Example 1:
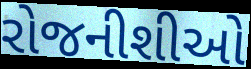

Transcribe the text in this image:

રોજનીશીઓ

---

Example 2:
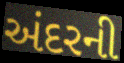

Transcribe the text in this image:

અંદરની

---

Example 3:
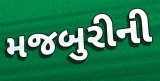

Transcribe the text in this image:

મજબુરીની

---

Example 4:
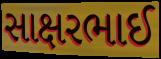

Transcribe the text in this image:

સાક્ષરભાઈ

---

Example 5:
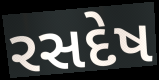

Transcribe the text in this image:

રસદેષ